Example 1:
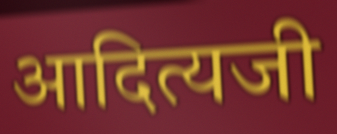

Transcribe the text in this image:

आदित्यजी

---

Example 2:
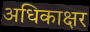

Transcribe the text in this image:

अधिकाक्षर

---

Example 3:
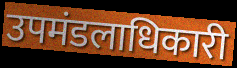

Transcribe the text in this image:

उपमंडलाधिकारी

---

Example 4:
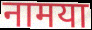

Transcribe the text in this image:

नामया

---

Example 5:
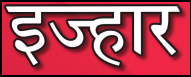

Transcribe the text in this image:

इज्हार